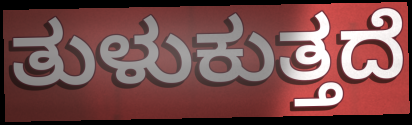
ತುಳುಕುತ್ತದೆ